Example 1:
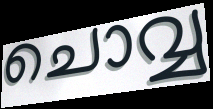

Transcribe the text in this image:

ചൊവ്വ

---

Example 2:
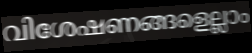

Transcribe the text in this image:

വിശേഷണങ്ങളെല്ലാം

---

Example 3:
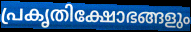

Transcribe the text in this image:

പ്രകൃതിക്ഷോഭങ്ങളും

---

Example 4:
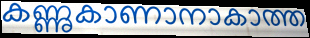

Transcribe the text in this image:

കണ്ണുകാണാനാകാത്ത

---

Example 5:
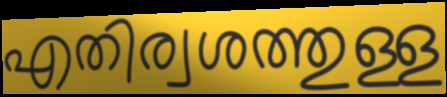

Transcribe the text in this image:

എതിര്വശത്തുള്ള